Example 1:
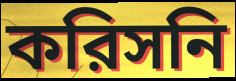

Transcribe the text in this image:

করিসনি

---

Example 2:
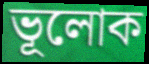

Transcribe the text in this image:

ভূলোক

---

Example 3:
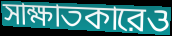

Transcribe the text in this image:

সাক্ষাতকারেও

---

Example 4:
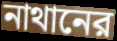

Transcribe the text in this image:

নাথানের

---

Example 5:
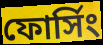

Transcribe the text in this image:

ফোর্সিং